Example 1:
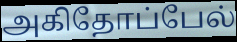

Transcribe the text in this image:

அகிதோப்பேல்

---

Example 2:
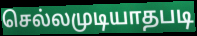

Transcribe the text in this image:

செல்லமுடியாதபடி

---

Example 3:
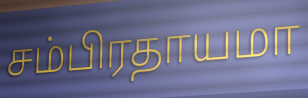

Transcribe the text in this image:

சம்பிரதாயமா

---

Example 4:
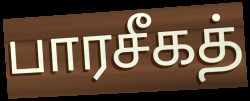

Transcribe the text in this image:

பாரசீகத்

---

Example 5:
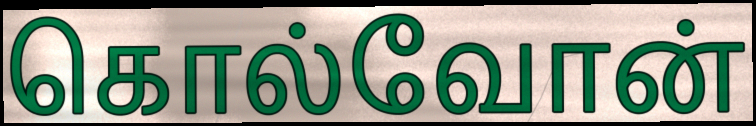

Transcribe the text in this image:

கொல்வோன்